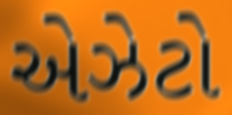
એઝેટો